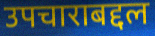
उपचाराबद्दल